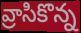
వ్రాసికొన్న